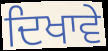
ਦਿਖਾਵੇ